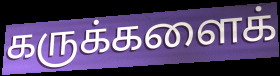
கருக்களைக்